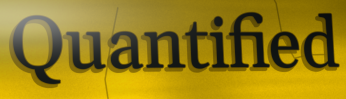
Quantified